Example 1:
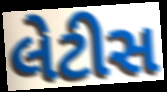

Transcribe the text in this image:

લેટીસ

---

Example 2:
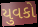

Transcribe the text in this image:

યુવકો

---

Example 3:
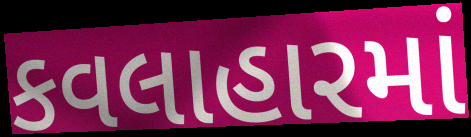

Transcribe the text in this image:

કવલાહારમાં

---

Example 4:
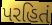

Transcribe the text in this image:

પરહિતં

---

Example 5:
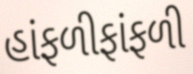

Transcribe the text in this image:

હાંફળીફાંફળી